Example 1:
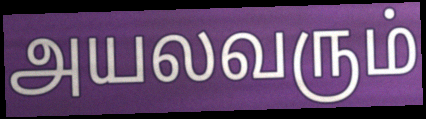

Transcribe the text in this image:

அயலவரும்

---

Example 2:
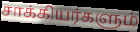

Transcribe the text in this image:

சாக்கியர்களும்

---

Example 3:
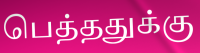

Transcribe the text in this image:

பெத்ததுக்கு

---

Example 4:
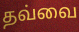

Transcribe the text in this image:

தவ்வை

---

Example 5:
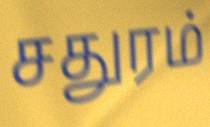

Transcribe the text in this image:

சதுரம்